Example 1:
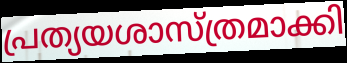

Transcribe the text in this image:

പ്രത്യയശാസ്ത്രമാക്കി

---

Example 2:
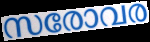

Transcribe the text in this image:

സരോവര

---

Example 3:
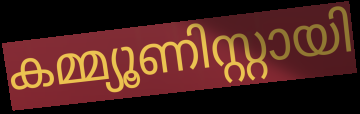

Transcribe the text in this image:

കമ്മ്യൂണിസ്റ്റായി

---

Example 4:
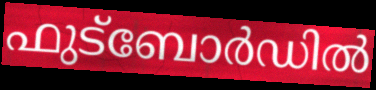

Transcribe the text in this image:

ഫുട്ബോർഡിൽ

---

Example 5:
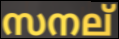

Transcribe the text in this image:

സനല്